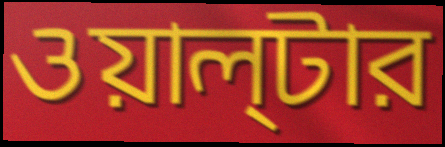
ওয়াল্‌টার